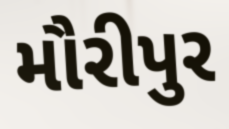
મૌરીપુર